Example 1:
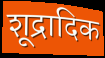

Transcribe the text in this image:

शूद्रादिक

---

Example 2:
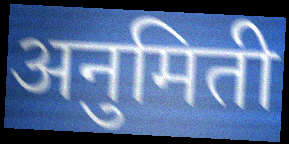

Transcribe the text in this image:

अनुमिती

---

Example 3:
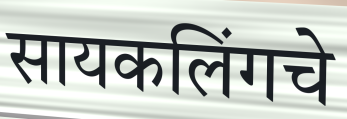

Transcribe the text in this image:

सायकलिंगचे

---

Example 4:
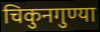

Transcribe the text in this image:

चिकुनगुण्या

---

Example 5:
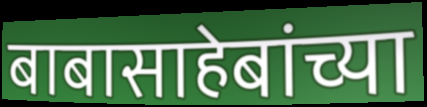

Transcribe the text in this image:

बाबासाहेबांच्‍या